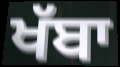
ਖੱਬਾ